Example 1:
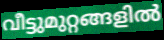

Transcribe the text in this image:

വീട്ടുമുറ്റങ്ങളിൽ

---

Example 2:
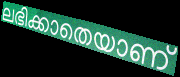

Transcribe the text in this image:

ലഭിക്കാതെയാണ്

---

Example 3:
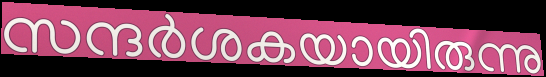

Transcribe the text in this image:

സന്ദർശകയായിരുന്നു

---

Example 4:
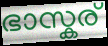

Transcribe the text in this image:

ഭാസ്കര്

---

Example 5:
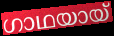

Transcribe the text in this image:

ഗാഥയായ്